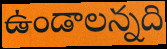
ఉండాలన్నది